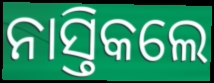
ନାସ୍ତିକଲେ